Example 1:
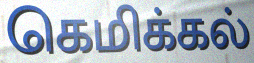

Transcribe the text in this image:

கெமிக்கல்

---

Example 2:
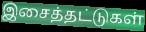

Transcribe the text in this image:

இசைத்தட்டுகள்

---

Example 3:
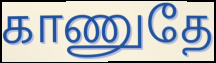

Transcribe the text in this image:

காணுதே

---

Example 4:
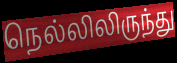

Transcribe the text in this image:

நெல்லிலிருந்து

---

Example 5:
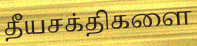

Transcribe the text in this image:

தீயசக்திகளை